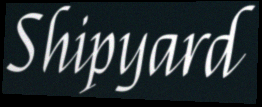
Shipyard